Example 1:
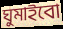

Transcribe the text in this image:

ঘুমাইবো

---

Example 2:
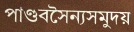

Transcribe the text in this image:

পাণ্ডবসৈন্যসমুদয়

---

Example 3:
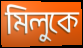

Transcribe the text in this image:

মিলুকে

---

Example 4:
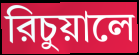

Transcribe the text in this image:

রিচুয়ালে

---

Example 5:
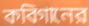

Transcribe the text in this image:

কবিগানের